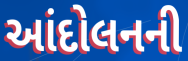
આંદોલનની